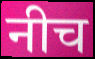
नीच